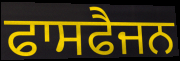
ਫਾਸਫੈਜਨ